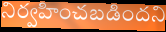
నిర్వహించబడిందని